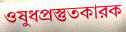
ওষুধপ্রস্তুতকারক